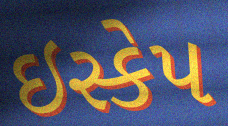
ઇસ્કેપ